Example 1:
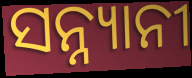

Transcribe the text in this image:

ସନ୍ନ୍ୟାନୀ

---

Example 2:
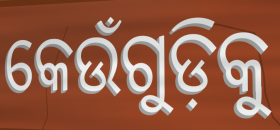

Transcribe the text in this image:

କେଉଁଗୁଡ଼ିକୁ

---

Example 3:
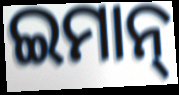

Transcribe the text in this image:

ଇମାନ୍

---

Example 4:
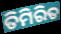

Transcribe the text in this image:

ତିମିରିତ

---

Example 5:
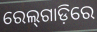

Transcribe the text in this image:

ରେଲ୍‌ଗାଡ଼ିରେ